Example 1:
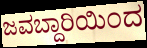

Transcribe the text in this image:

ಜವಬ್ದಾರಿಯಿಂದ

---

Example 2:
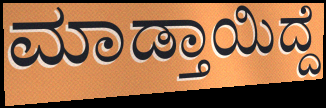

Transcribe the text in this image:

ಮಾಡ್ತಾಯಿದ್ದೆ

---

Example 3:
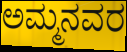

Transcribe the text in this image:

ಅಮ್ಮನವರ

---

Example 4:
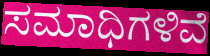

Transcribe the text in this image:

ಸಮಾಧಿಗಳಿವೆ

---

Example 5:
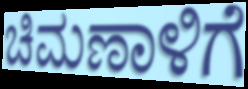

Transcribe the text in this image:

ಚಿಮಣಾಳಿಗೆ